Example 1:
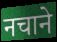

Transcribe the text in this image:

नचाने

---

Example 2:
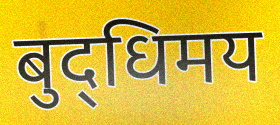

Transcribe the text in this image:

बुद्धिमय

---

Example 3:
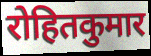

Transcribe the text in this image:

रोहितकुमार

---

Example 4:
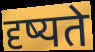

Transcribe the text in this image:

दृष्यते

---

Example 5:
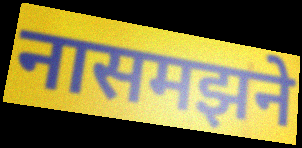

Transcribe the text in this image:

नासमझने